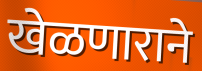
खेळणाराने